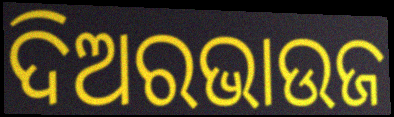
ଦିଅରଭାଉଜ